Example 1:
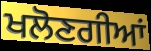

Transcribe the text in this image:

ਖਲੋਣਗੀਆਂ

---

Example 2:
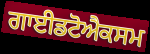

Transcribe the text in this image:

ਗਾਈਡਟੋਐਕਸਮ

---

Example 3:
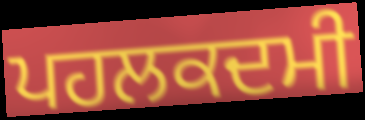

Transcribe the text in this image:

ਪਹਲਕਦਮੀ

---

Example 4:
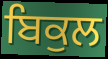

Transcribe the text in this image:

ਬਿਕੁਲ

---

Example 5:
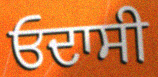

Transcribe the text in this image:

ਓਦਾਸੀ